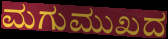
ಮಗುಮುಖದ